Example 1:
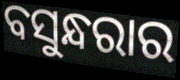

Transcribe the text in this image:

ବସୁନ୍ଧରାର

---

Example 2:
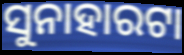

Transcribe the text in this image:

ସୁନାହାରଟା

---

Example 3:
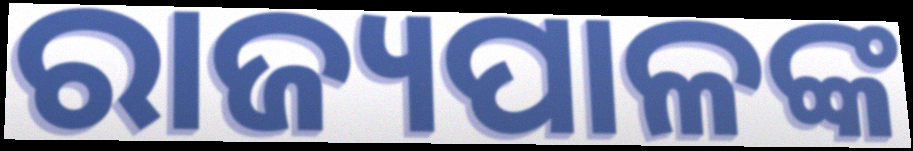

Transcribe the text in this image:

ରାଜ୍ୟପାଳଙ୍କ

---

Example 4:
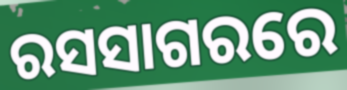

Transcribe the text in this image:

ରସସାଗରରେ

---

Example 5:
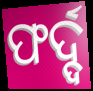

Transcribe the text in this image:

ଫର୍ଦ୍ଦ